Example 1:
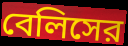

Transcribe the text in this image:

বেলিসের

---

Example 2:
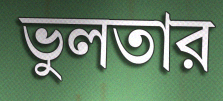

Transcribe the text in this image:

ভুলতার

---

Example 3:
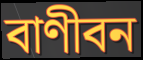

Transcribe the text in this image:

বাণীবন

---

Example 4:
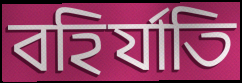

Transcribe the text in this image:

বহির্যাতি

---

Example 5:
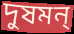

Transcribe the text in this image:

দুষমন্